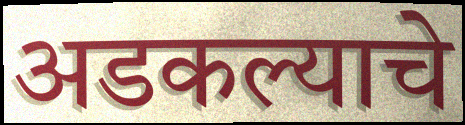
अडकल्याचे